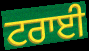
ਟਰਾਈ